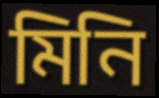
মিনি